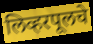
लिव्हरपूलचे